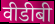
वीडीबी